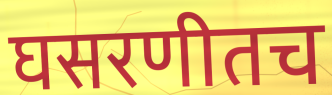
घसरणीतच